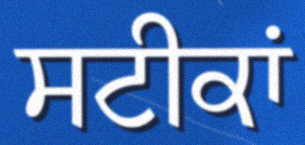
ਸਟੀਕਾਂ